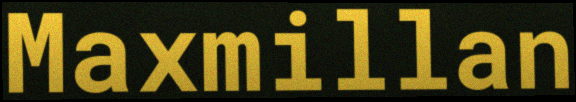
Maxmillan